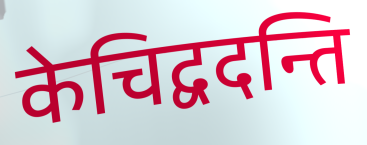
केचिद्वदन्ति